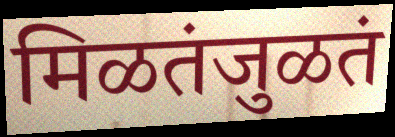
मिळतंजुळतं